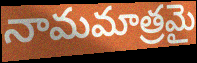
నామమాత్రమై